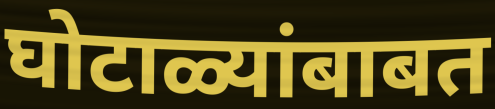
घोटाळ्यांबाबत